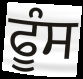
ਫੂੰਸ